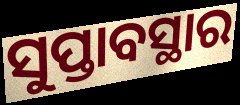
ସୁପ୍ତାବସ୍ଥାର